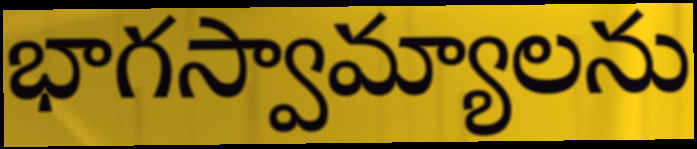
భాగస్వామ్యాలను